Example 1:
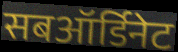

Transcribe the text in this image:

सबऑर्डिनेट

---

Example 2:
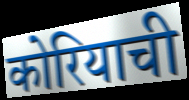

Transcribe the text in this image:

कोरियाची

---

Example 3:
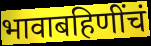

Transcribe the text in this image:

भावाबहिणींचं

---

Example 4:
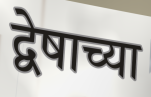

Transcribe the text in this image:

द्वेषाच्या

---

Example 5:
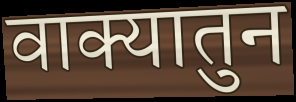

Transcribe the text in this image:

वाक्यातुन